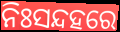
ନିଃସନ୍ଦହରେ